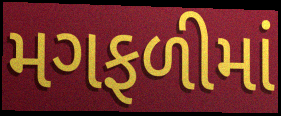
મગફળીમાં